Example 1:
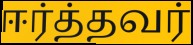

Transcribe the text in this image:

ஈர்த்தவர்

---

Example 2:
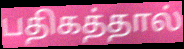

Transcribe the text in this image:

பதிகத்தால்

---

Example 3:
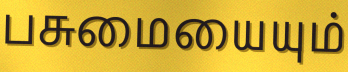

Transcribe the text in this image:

பசுமையையும்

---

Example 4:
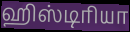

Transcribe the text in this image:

ஹிஸ்டிரியா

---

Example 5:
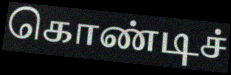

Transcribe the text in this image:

கொண்டிச்